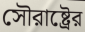
সৌরাষ্ট্রের